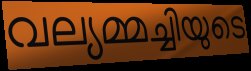
വല്യമ്മച്ചിയുടെ